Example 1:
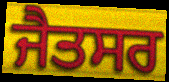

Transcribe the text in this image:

ਜੈਤਸਰ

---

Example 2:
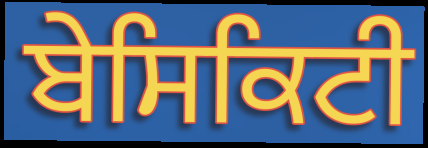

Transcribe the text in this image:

ਬੇਸਿਕਿਟੀ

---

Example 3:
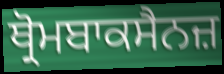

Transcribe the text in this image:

ਥ੍ਰੋਮਬਾਕਸੈਨਜ਼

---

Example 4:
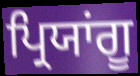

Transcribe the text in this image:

ਪ੍ਰਿਯਾਂਗੂ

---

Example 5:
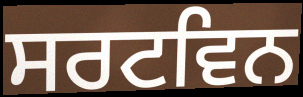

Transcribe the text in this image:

ਸਰਟਵਿਨ